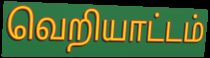
வெறியாட்டம்